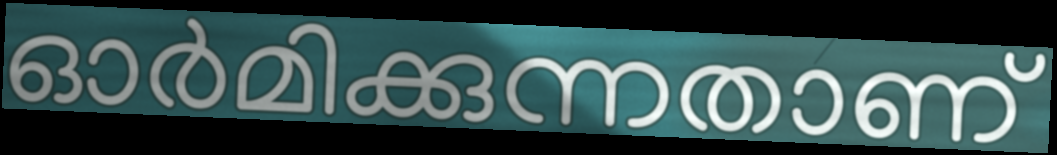
ഓർമിക്കുന്നതാണ്